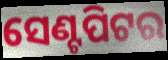
ସେଣ୍ଟପିଟର